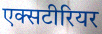
एक्‍सटीरियर